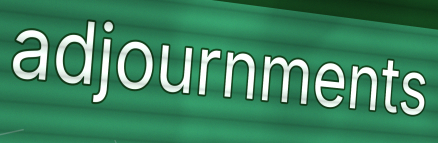
adjournments